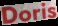
Doris